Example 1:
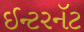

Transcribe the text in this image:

ઈન્ટરનૅટ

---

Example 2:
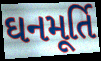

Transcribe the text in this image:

ઘનમૂર્તિ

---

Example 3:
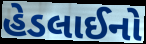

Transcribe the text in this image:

હેડલાઈનો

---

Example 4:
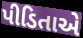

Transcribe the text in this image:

પીડિતાએ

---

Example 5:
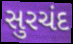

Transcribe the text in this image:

સુરચંદ